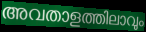
അവതാളത്തിലാവും